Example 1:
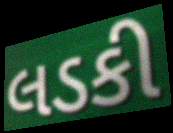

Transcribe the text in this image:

લડકી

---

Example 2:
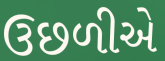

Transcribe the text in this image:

ઉછળીએ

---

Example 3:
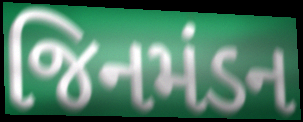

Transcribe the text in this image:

જિનમંડન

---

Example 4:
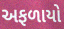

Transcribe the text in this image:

અફળાયો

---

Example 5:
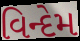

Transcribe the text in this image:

વિન્દેમ